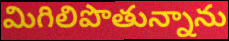
మిగిలిపొతున్నాను